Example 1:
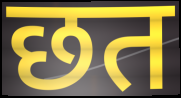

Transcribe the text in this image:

छत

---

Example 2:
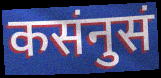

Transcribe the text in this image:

कसंनुसं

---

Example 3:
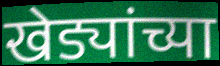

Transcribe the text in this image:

खेड्यांच्या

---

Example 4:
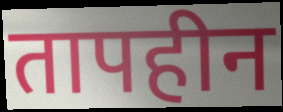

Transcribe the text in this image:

तापहीन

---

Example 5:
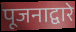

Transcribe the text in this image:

पूजनाद्वारे